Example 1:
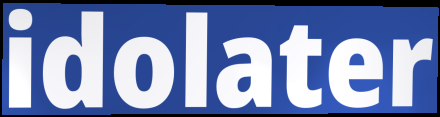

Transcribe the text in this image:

idolater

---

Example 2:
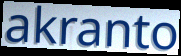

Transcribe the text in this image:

akranto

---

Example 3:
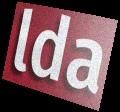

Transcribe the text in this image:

lda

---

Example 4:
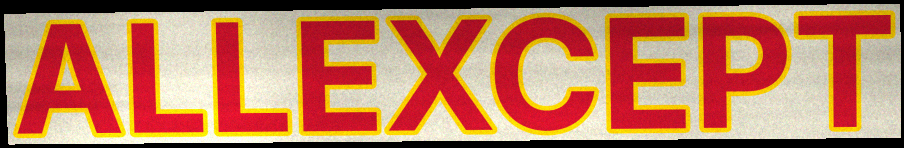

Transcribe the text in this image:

ALLEXCEPT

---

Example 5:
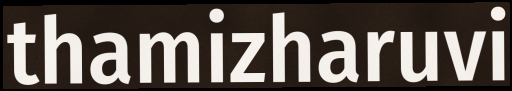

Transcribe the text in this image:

thamizharuvi